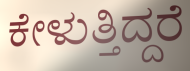
ಕೇಳುತ್ತಿದ್ದರೆ